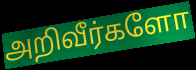
அறிவீர்களோ